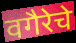
वगैरेचे